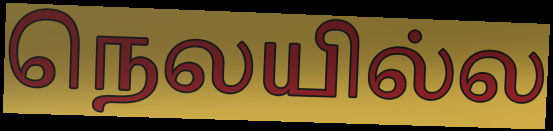
நெலயில்ல